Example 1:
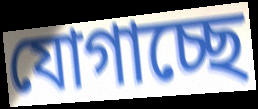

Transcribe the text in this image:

যোগাচ্ছে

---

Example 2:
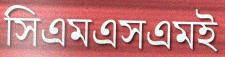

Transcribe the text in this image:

সিএমএসএমই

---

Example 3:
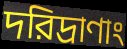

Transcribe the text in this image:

দরিদ্রাণাং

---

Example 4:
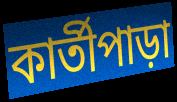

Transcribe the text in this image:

কার্তীপাড়া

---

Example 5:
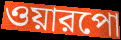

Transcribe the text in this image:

ওয়ারপো